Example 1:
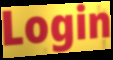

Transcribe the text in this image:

Login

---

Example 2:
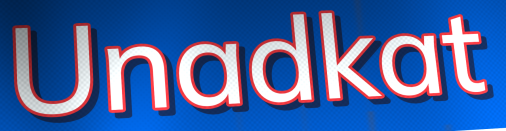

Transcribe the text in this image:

Unadkat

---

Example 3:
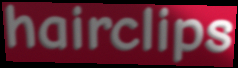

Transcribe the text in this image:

hairclips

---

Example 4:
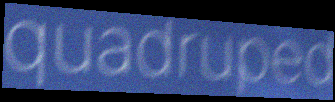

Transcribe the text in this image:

quadruped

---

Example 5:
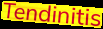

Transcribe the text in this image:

Tendinitis